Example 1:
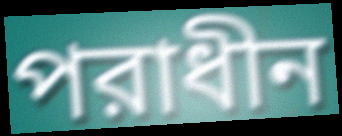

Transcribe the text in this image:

পরাধীন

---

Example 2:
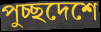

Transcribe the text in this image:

পুচ্ছদেশে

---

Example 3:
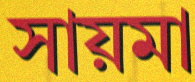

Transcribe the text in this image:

সায়মা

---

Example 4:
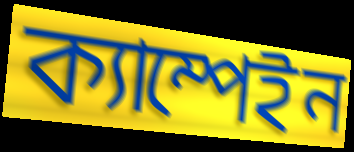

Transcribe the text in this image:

ক্যাম্পেইন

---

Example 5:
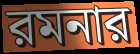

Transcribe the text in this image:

রমনার